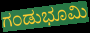
ಗಂಡುಭೂಮಿ